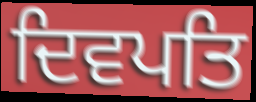
ਦਿਵਪਤਿ